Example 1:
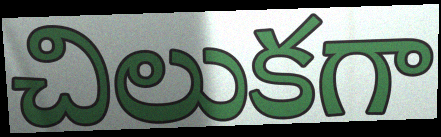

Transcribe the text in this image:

చిలుకగా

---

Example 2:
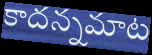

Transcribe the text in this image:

కాదన్నమాట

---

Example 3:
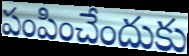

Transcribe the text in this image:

పంపించేందుకు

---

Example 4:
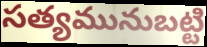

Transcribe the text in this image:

సత్యమునుబట్టి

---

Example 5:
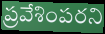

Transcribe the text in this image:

ప్రవేశింపరని